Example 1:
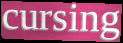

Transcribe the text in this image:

cursing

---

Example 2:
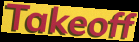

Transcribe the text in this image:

Takeoff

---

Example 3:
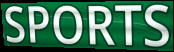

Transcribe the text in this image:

SPORTS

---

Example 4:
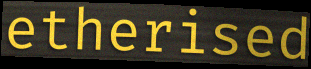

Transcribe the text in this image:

etherised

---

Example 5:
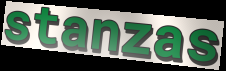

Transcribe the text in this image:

stanzas